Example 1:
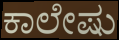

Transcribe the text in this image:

ಕಾಲೇಷು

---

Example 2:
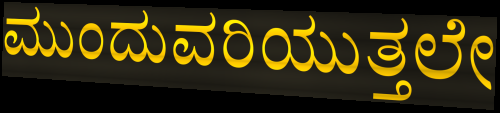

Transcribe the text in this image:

ಮುಂದುವರಿಯುತ್ತಲೇ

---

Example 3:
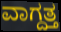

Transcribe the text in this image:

ವಾಗ್ದತ್ತ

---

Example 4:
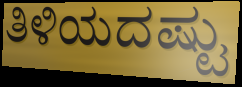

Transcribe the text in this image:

ತಿಳಿಯದಷ್ಟು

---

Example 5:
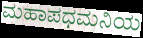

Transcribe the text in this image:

ಮಹಾಪಧಮನಿಯ